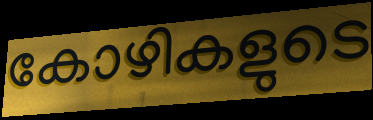
കോഴികളുടെ